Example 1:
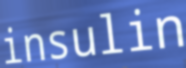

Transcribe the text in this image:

insulin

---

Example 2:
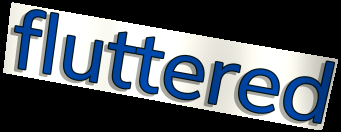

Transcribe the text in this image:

fluttered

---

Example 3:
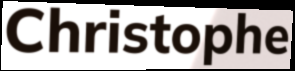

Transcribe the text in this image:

Christophe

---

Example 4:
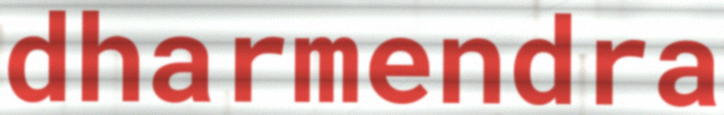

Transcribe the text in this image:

dharmendra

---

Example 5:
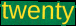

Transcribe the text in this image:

twenty